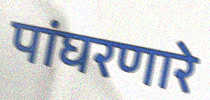
पांघरणारे